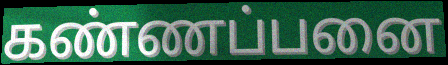
கண்ணப்பனை